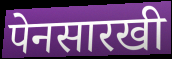
पेनसारखी